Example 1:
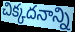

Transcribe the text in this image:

చిక్కదనాన్ని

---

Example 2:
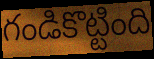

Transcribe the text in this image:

గండికొట్టింది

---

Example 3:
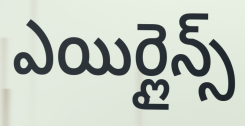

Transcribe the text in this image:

ఎయిర్లైన్స్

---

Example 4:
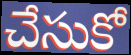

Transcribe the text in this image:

చేసుకో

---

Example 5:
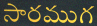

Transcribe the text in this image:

సారముగ